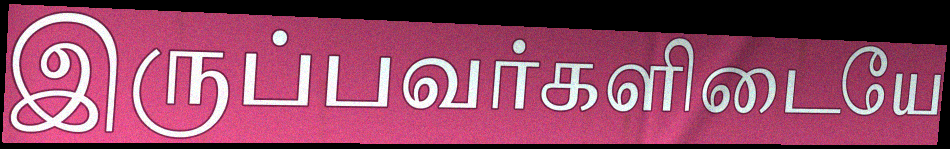
இருப்பவர்களிடையே